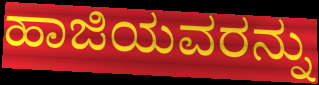
ಹಾಜಿಯವರನ್ನು